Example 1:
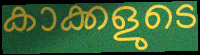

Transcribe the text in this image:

കാക്കളുടെ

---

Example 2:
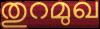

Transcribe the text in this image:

തുറമുഖ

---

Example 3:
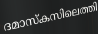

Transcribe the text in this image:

ദമാസ്കസിലെത്തി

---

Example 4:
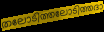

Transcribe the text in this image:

തലോടിത്തലോടിത്തദാ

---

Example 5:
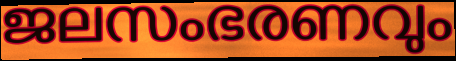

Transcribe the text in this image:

ജലസംഭരണവും